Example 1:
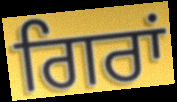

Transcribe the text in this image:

ਗਿਰਾਂ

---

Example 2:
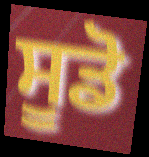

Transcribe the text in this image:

ਸੂਡੋ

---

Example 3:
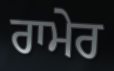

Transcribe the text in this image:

ਰਾਮੇਰ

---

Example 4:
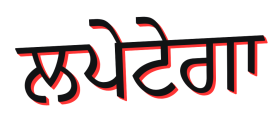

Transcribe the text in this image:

ਲਪੇਟੇਗਾ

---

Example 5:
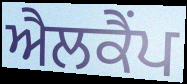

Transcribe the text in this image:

ਐਲਕੈਂਪ